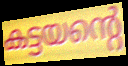
കട്ടയന്റെ